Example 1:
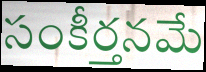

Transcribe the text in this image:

సంకీర్తనమే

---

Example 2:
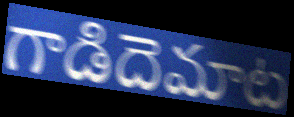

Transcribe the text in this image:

గాడిదెమాట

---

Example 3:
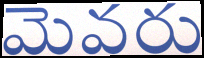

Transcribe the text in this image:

మెవరు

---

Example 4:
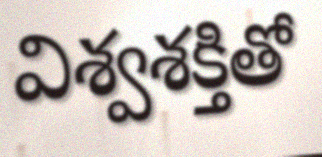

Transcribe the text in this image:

విశ్వశక్తితో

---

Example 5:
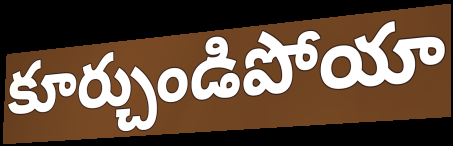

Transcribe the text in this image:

కూర్చుండిపోయా